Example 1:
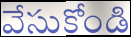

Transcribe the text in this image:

వేసుకోండి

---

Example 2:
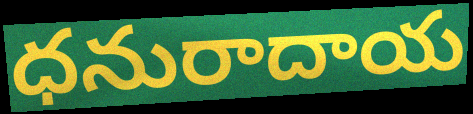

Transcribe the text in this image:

ధనురాదాయ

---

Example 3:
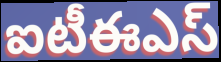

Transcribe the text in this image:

ఐటీఈఎస్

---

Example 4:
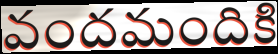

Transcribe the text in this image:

వందమందికి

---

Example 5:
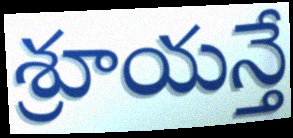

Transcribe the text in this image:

శ్రూయన్తే